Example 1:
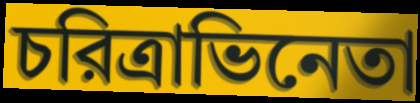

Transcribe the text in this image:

চরিত্রাভিনেতা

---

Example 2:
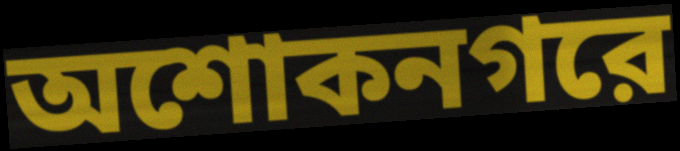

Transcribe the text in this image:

অশোকনগরে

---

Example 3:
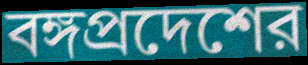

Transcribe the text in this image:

বঙ্গপ্রদেশের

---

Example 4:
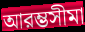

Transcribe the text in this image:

আরম্ভসীমা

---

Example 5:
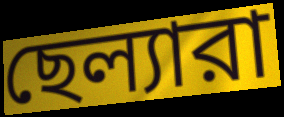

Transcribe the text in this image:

ছেল্যারা